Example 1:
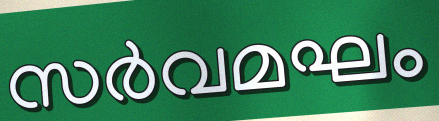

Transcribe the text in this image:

സർവമഘം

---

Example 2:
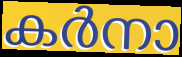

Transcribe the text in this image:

കർനാ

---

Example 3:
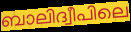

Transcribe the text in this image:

ബാലിദ്വീപിലെ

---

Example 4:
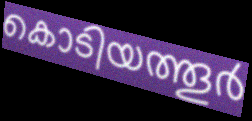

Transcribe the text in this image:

കൊടിയത്തൂർ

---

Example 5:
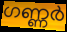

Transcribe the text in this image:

ഗണ്ണർ